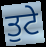
ਤੁਟੇ